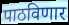
पाठविणार